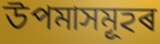
উপমাসমূহৰ